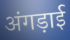
अंगड़ाई